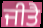
ਜੀਤੈ